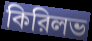
কিরিলভ